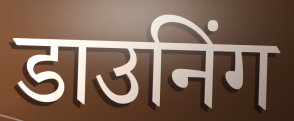
डाउनिंग